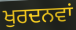
ਖੁਰਦਨਵਾਂ